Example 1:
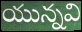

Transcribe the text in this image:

యున్నవి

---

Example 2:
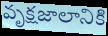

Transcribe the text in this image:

వృక్షజాలానికి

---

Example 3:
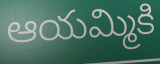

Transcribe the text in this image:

ఆయమ్మికి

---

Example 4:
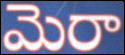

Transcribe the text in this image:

మెరా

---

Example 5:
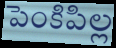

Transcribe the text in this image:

పెంకిపిల్ల